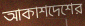
আকাশদেশের